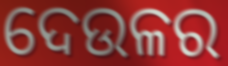
ଦେଉଳର